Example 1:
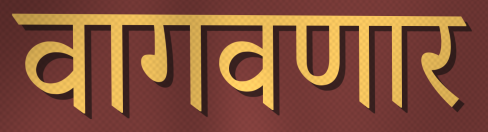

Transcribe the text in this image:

वागवणार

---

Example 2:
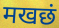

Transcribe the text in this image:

मखछं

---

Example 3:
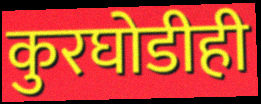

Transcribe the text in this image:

कुरघोडीही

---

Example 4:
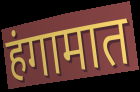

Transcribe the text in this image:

हंगामात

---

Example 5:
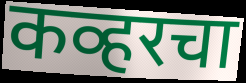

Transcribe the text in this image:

कव्हरचा